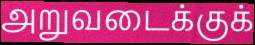
அறுவடைக்குக்